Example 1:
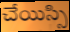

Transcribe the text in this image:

చేయిస్సి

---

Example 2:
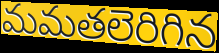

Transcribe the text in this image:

మమతలెరిగిన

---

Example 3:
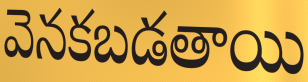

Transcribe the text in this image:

వెనకబడతాయి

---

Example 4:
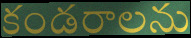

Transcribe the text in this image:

కండరాలను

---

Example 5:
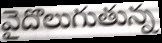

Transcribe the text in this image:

వైదొలుగుతున్న